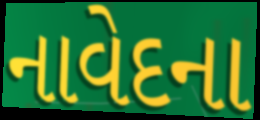
નાવેદના